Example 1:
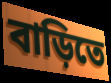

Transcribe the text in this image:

বাড়িতে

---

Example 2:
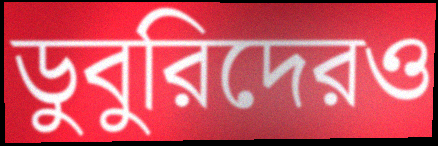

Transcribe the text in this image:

ডুবুরিদেরও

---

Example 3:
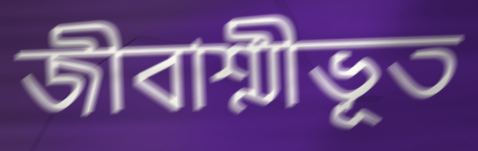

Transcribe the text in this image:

জীবাশ্মীভূত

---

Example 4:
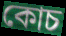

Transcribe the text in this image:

কোচ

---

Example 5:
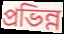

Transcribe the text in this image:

প্রভিন্ন